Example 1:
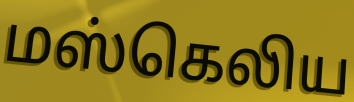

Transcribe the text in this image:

மஸ்கெலிய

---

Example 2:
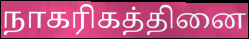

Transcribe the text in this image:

நாகரிகத்தினை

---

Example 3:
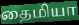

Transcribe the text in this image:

தைமியா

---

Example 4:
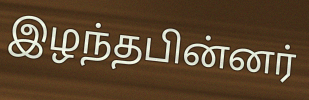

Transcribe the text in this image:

இழந்தபின்னர்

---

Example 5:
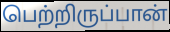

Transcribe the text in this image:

பெற்றிருப்பான்